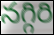
నగ్గిరి